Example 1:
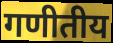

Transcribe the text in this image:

गणीतीय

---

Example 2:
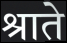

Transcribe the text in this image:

श्राते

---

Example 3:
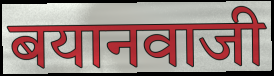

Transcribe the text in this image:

बयानवाजी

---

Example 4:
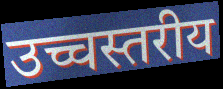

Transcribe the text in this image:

उच्चस्तरीय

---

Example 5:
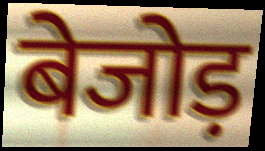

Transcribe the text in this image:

बेजोड़